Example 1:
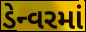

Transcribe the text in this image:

ડેન્વરમાં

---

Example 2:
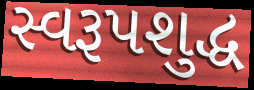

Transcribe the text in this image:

સ્વરૂપશુદ્ધ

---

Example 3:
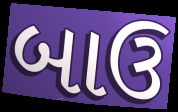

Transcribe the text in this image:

બાઉ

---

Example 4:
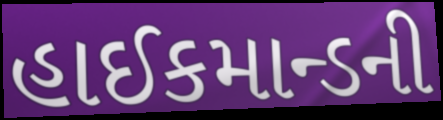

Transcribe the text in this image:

હાઈકમાન્ડની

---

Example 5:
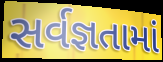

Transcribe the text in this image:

સર્વજ્ઞતામાં